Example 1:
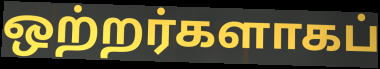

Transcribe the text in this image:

ஒற்றர்களாகப்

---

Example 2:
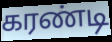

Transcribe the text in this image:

கரண்டி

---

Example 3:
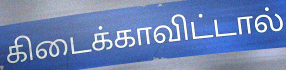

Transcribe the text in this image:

கிடைக்காவிட்டால்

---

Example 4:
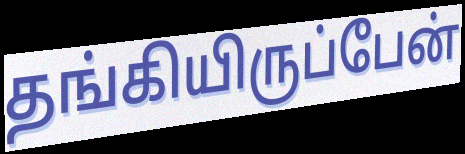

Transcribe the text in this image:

தங்கியிருப்பேன்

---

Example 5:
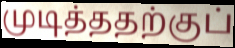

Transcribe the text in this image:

முடித்ததற்குப்